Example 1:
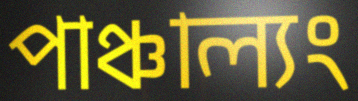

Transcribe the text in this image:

পাঞ্চাল্যং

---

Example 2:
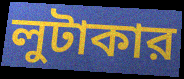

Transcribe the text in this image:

লুটাকার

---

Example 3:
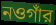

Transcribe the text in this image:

নওগাঁর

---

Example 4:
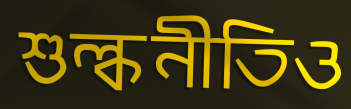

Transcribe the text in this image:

শুল্কনীতিও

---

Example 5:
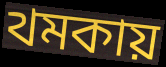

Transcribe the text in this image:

থমকায়